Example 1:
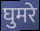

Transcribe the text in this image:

घुमरे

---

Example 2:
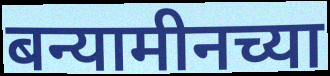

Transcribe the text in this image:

बन्यामीनच्या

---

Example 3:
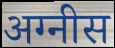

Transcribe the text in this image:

अग्नीस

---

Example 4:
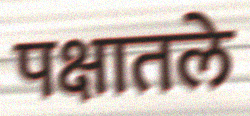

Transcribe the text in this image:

पक्षातले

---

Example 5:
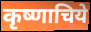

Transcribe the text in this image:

कृष्णाचिये